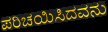
ಪರಿಚಯಿಸಿದವನು